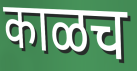
काळच